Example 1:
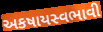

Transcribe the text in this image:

અકષાયસ્વભાવી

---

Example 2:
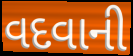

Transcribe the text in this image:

વદવાની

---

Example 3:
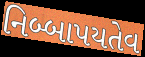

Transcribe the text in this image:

નિબ્બાપયતેવ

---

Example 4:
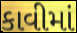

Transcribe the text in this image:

કાવીમાં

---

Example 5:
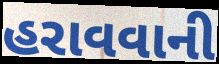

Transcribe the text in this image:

હરાવવાની